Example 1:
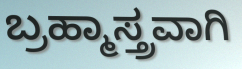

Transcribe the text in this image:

ಬ್ರಹ್ಮಾಸ್ತ್ರವಾಗಿ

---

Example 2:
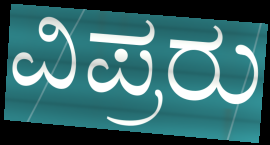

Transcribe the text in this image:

ವಿಪ್ರರು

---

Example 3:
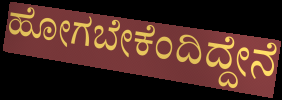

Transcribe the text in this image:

ಹೋಗಬೇಕೆಂದಿದ್ದೇನೆ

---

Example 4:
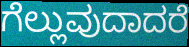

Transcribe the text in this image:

ಗೆಲ್ಲುವುದಾದರೆ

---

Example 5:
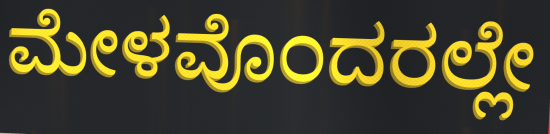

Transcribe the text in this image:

ಮೇಳವೊಂದರಲ್ಲೇ